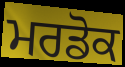
ਮਰਡੋਕ